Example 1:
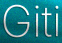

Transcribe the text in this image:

Giti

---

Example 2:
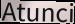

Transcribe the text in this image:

Atunci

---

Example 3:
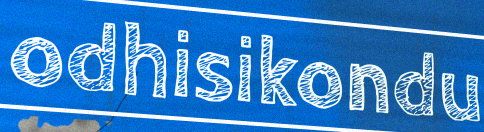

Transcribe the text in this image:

odhisikondu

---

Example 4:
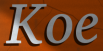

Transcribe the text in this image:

Koe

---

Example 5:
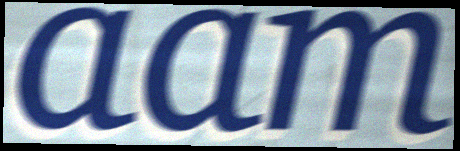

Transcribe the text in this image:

aam